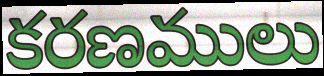
కరణములు